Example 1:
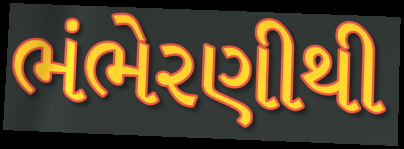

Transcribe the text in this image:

ભંભેરણીથી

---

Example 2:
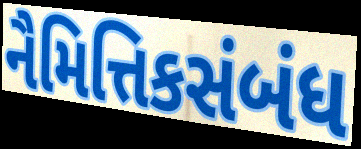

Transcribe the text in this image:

નૈમિત્તિકસંબંધ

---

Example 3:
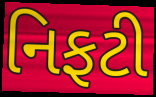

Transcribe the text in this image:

નિફટી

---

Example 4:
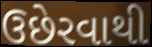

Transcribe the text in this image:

ઉછેરવાથી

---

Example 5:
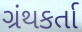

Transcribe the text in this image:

ગ્રંથકર્તા